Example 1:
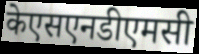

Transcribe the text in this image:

केएसएनडीएमसी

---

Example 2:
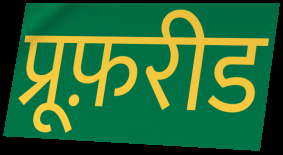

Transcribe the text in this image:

प्रूफ़रीड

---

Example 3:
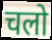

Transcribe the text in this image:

चलो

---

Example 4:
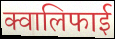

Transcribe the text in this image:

क्वालिफाई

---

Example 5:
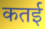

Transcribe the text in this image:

कतई